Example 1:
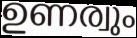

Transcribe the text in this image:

ഉണര്വും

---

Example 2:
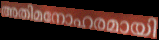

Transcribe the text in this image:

അതിമനോഹരമായി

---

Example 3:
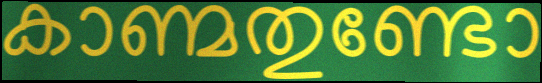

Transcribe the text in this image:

കാണ്മതുണ്ടോ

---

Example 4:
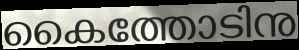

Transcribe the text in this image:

കൈത്തോടിനു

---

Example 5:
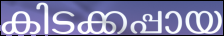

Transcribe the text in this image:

കിടക്കപ്പായ